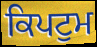
ਕਿਪਟੁਮ